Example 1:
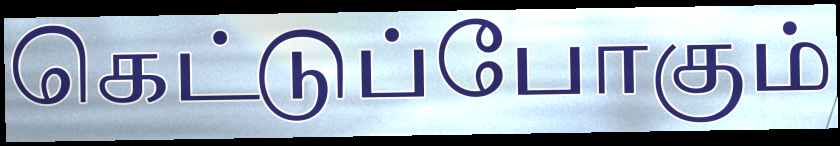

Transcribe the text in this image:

கெட்டுப்போகும்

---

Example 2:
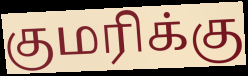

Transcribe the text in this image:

குமரிக்கு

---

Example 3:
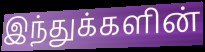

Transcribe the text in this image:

இந்துக்களின்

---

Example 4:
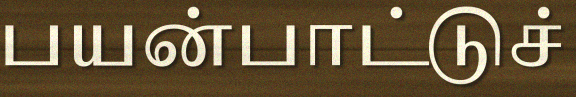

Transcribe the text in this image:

பயன்பாட்டுச்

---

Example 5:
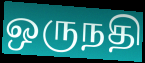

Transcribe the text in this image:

ஒருநதி